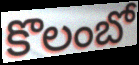
కొలంబో